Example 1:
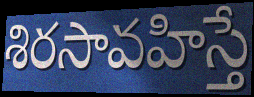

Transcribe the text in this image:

శిరసావహిస్తే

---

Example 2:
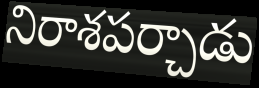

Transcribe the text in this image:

నిరాశపర్చాడు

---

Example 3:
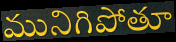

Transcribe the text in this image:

మునిగిపోతూ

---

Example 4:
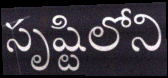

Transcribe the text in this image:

సృష్టిలోని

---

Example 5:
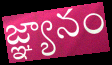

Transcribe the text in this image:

జ్ఞ్యానం